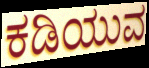
ಕಡಿಯುವ